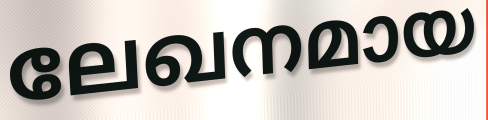
ലേഖനമായ